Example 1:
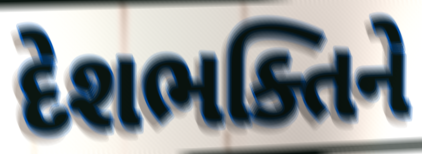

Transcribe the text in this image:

દેશભક્તિને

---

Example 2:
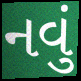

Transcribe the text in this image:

નવું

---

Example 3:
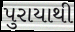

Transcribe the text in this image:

પુરાયાથી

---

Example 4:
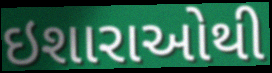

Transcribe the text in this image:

ઇશારાઓથી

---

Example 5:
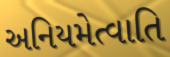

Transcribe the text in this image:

અનિયમેત્વાતિ